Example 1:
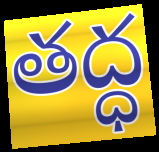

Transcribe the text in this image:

తద్ధ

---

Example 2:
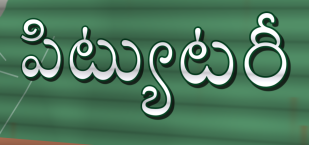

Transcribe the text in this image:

పిట్యుటరీ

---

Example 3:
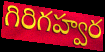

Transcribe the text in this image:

గిరిగహ్వర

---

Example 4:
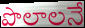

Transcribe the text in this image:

పొలాలనే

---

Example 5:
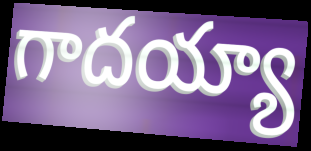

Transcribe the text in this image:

గాదయ్యా